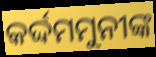
କର୍ଦ୍ଦମମୁନୀଙ୍କ